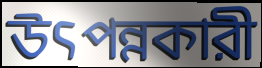
উৎপন্নকারী